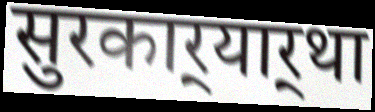
सुरकार्यार्था